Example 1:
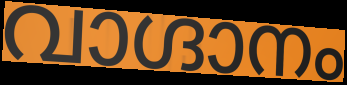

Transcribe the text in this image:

വാഗ്ദാനം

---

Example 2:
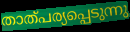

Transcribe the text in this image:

താത്പര്യപ്പെടുന്നു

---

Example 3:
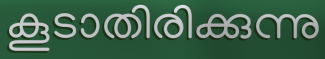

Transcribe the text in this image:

കൂടാതിരിക്കുന്നു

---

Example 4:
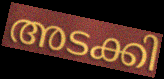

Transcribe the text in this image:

അടക്കി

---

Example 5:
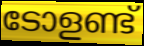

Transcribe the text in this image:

ടോളണ്ട്